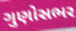
ગુણોસભર